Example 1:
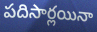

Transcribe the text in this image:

పదిసార్లయినా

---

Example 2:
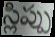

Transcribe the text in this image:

స్లిప్పు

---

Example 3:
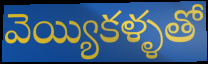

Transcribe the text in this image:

వెయ్యికళ్ళతో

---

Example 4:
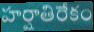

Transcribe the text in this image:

హర్షాతిరేకం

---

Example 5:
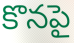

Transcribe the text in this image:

కొనపై